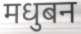
मधुबन